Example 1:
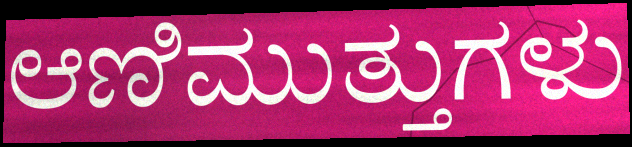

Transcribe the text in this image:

ಆಣಿಮುತ್ತುಗಳು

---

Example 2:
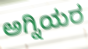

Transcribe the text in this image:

ಅಗ್ನಿಯರ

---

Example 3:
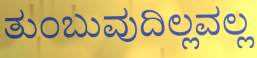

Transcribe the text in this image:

ತುಂಬುವುದಿಲ್ಲವಲ್ಲ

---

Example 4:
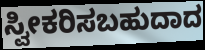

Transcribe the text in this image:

ಸ್ವೀಕರಿಸಬಹುದಾದ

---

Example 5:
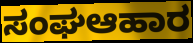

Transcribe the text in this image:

ಸಂಘಆಹಾರ